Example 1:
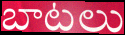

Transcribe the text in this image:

బాటలు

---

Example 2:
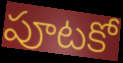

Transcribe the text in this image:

పూటకో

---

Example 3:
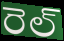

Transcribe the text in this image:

రెల్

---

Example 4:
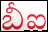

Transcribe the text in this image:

బీఐ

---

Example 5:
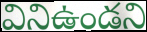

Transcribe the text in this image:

వినిఉండని